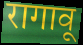
रागावू